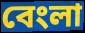
বেংলা